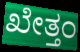
ಖೇತ್ತಂ